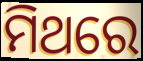
ମିଥରେ